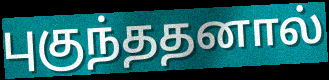
புகுந்ததனால்